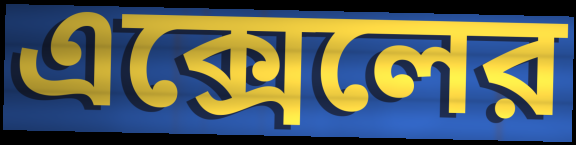
এক্সেলের